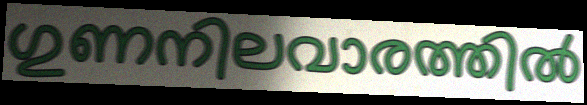
ഗുണനിലവാരത്തിൽ